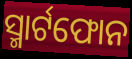
ସ୍ମାର୍ଟଫୋନ